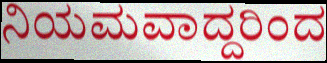
ನಿಯಮವಾದ್ದರಿಂದ